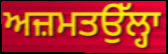
ਅਜ਼ਮਤਉੱਲ੍ਹਾ